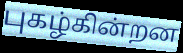
புகழ்கின்றன